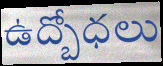
ఉద్బోధలు